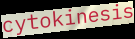
cytokinesis